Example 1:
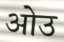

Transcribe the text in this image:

ओउ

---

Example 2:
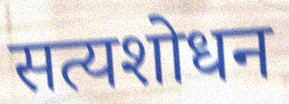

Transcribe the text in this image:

सत्यशोधन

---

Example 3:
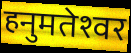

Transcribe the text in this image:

हनुमतेश्वर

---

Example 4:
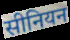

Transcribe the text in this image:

सीनियन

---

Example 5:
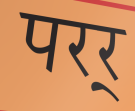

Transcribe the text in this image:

परर्